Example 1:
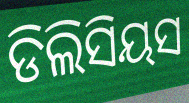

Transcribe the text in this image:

ଡିଲିସିୟସ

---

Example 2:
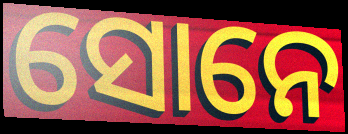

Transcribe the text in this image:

ସୋନେ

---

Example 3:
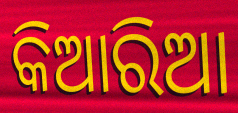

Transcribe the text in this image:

କିଆରିଆ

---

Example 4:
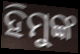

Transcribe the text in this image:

ହିମୁଙ୍କ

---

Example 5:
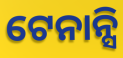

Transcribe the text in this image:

ଟେନାନ୍ସି